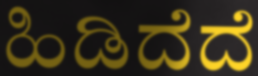
ಹಿಡಿದೆದೆ